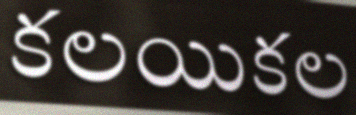
కలయికల